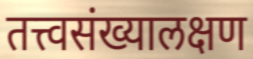
तत्त्वसंख्यालक्षण